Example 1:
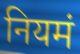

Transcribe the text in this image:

नियमं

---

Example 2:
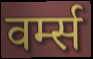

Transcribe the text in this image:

वर्म्स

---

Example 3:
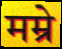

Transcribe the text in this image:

मम्रे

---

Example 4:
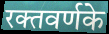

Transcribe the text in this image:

रक्तवर्णके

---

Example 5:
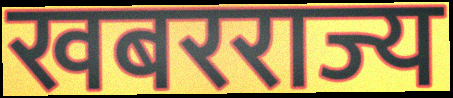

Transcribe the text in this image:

खबरराज्य